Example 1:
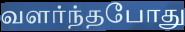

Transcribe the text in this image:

வளர்ந்தபோது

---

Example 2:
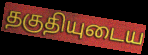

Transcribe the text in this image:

தகுதியுடைய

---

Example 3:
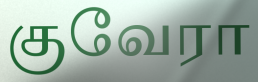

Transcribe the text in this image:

குவேரா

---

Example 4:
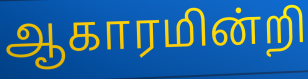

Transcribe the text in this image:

ஆகாரமின்றி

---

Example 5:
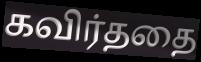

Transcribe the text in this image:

கவிர்ததை